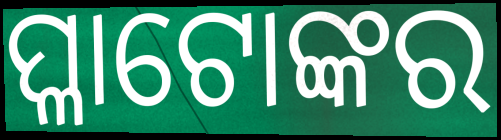
ପ୍ଳାଟୋଙ୍କର